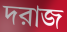
দরাজ